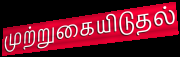
முற்றுகையிடுதல்